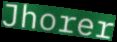
Jhorer